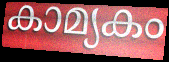
കാമ്യകം